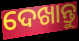
ଦେଖାନ୍ତୁ